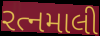
રત્નમાલી